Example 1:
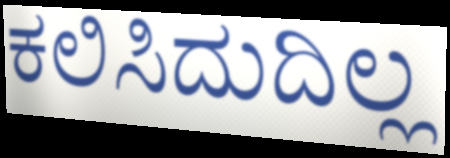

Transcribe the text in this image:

ಕಲಿಸಿದುದಿಲ್ಲ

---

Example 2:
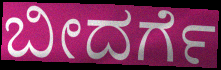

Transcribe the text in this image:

ಬೀದರ್ಗೆ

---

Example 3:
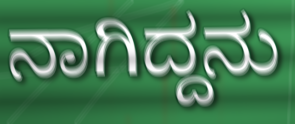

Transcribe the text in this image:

ನಾಗಿದ್ದನು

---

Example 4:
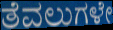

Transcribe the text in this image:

ತೆವಲುಗಳೇ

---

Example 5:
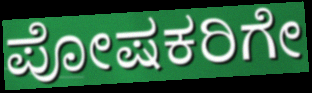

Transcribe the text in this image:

ಪೋಷಕರಿಗೇ